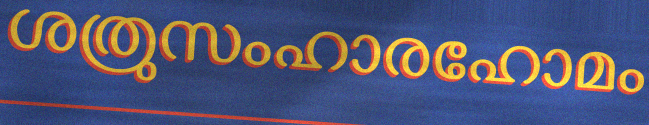
ശത്രുസംഹാരഹോമം